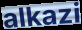
alkazi